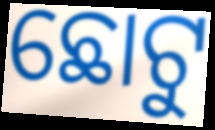
ଛୋଟୁ